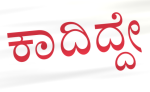
ಕಾದಿದ್ದೇ